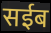
सईब